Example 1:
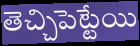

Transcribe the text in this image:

తెచ్చిపెట్టేయి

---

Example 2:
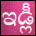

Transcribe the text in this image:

ఇడ్లీ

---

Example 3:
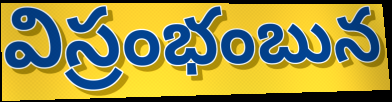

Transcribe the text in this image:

విస్రంభంబున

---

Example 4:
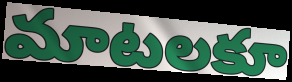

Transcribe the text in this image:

మాటలకూ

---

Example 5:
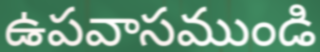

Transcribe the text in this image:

ఉపవాసముండి